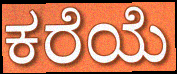
ಕರೆಯೆ